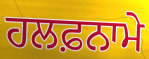
ਹਲਫ਼ਨਾਮੇ